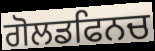
ਗੋਲਡਫਿਨਚ